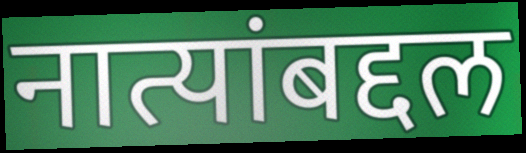
नात्यांबद्दल